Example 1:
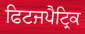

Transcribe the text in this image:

ਫਿਟਜਪੈਟ੍ਰਿਕ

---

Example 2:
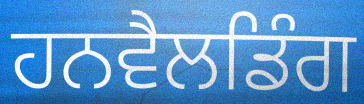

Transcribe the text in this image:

ਹਨਵੈਲਡਿੰਗ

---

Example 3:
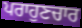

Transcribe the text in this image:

ਪਰਾਹੁਣਚਾਰ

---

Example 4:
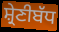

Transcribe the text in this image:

ਸ਼੍ਰੇਣੀਬੱਧ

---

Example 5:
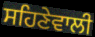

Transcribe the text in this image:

ਸਹਿਣੇਵਾਲੀ